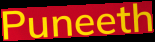
Puneeth